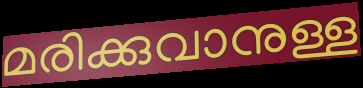
മരിക്കുവാനുള്ള